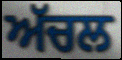
ਅੱਚਲ